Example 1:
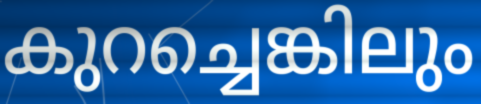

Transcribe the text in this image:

കുറച്ചെങ്കിലും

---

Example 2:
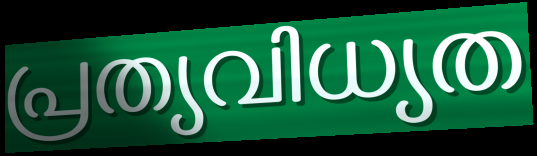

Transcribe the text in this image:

പ്രത്യവിധ്യത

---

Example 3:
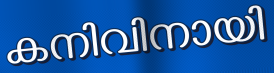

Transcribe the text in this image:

കനിവിനായി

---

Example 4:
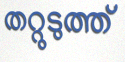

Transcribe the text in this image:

തറ്റുടുത്ത്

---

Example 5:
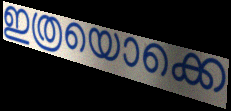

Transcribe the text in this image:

ഇത്രയൊക്കെ